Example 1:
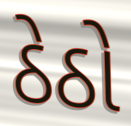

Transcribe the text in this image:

ઠેઠો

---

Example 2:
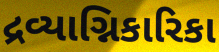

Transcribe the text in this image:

દ્રવ્યાગ્નિકારિકા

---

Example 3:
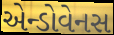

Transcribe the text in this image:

એન્ડોવેનસ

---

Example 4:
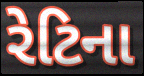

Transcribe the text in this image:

રેટિના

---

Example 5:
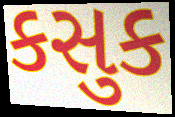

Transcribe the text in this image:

કસુક